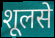
शूलसे